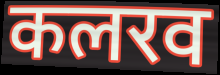
कलरव